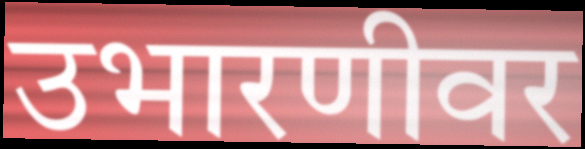
उभारणीवर